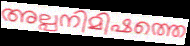
അല്പനിമിഷത്തെ